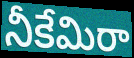
నీకేమిరా